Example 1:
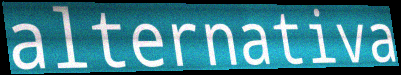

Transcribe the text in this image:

alternativa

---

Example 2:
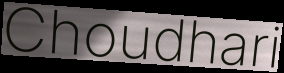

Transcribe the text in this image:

Choudhari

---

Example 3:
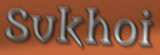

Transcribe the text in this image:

Sukhoi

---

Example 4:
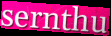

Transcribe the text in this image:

sernthu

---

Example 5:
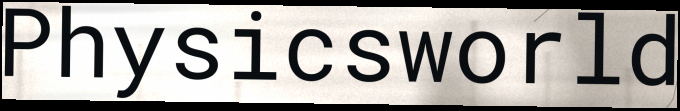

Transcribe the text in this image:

Physicsworld